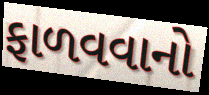
ફાળવવાનો